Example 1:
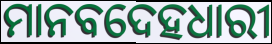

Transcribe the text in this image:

ମାନବଦେହଧାରୀ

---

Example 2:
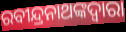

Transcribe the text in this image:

ରବୀନ୍ଦ୍ରନାଥଙ୍କଦ୍ୱାରା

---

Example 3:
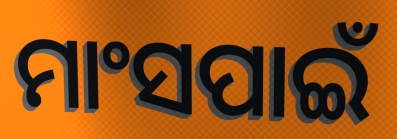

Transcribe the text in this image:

ମାଂସପାଇଁ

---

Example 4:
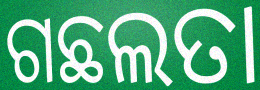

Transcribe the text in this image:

ଗଛଲତା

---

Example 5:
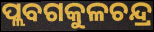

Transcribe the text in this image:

ପ୍ଲବଗକୁଳଚନ୍ଦ୍ର